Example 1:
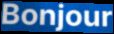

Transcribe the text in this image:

Bonjour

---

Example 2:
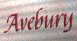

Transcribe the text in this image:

Avebury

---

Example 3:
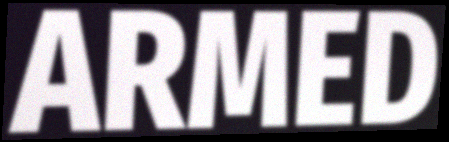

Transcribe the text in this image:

ARMED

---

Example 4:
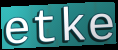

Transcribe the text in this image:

etke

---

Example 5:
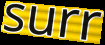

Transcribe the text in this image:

surr